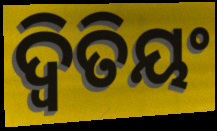
ଦ୍ୱିତିୟଂ